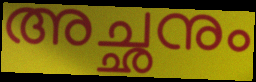
അച്ഛനും